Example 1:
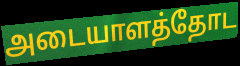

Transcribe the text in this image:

அடையாளத்தோட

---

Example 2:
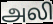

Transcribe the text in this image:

அலி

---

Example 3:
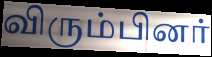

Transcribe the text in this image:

விரும்பினர்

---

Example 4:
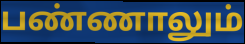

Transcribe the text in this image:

பண்ணாலும்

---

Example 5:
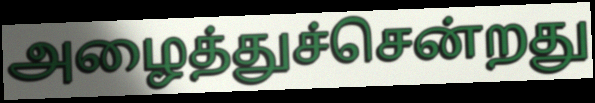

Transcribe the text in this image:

அழைத்துச்சென்றது